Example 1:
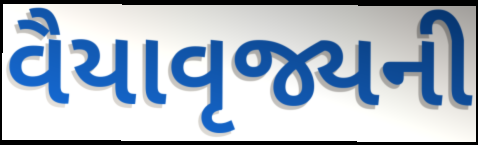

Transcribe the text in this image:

વૈયાવૃજ્યની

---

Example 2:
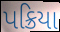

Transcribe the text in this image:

પક્રિયા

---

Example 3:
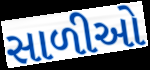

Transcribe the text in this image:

સાળીઓ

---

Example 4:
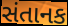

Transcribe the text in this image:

સંતાનક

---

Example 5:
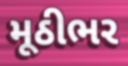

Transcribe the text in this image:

મૂઠીભર